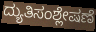
ದ್ಯುತಿಸಂಶ್ಲೇಷಣೆ